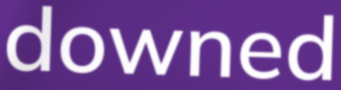
downed